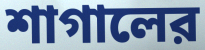
শাগালের